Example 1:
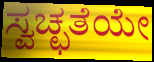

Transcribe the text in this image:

ಸ್ವಚ್ಛತೆಯೇ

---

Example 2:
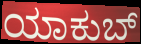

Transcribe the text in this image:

ಯಾಕುಬ್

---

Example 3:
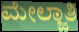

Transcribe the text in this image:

ಮೇಲ್ಜಾತಿ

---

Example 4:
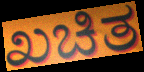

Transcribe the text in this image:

ಖಚಿತ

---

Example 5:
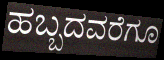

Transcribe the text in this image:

ಹಬ್ಬದವರೆಗೂ